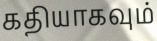
கதியாகவும்